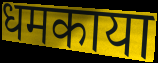
धमकाया